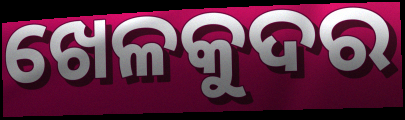
ଖେଳକୁଦର